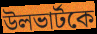
উলভার্টকে